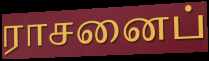
ராசனைப்